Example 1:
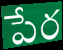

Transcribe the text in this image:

పేర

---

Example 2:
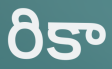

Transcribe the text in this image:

రికా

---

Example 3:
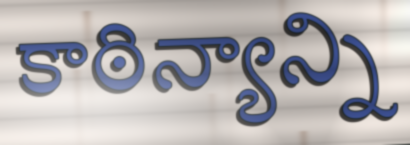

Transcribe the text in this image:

కాఠిన్యాన్ని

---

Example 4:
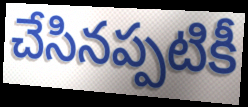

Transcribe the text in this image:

చేసినప్పటికీ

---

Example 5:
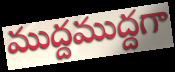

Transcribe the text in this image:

ముద్దముద్దగా